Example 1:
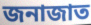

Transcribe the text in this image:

জনাজাত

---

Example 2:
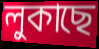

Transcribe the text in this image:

লুকাছে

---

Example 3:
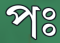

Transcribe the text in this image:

পঃ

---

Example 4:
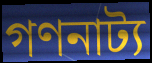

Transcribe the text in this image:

গণনাট্য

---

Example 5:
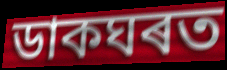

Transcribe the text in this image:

ডাকঘৰত